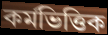
কর্মভিত্তিক